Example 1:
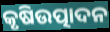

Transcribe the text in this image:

କୃଷିଉତ୍ପାଦନ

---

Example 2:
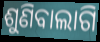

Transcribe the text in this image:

ଶୁଣିବାଲାଗି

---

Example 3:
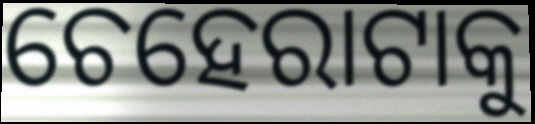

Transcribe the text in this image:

ଚେହେରାଟାକୁ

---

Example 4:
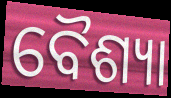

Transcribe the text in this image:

ବୈଶ୍ଯା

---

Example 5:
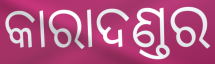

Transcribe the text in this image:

କାରାଦଣ୍ଡର